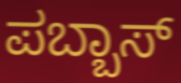
ಪಬ್ಬಾಸ್